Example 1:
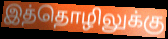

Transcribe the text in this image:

இத்தொழிலுக்கு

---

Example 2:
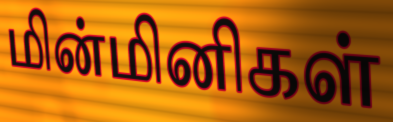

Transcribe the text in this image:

மின்மினிகள்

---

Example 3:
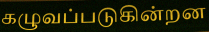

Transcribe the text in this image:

கழுவப்படுகின்றன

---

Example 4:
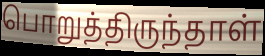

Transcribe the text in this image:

பொறுத்திருந்தாள்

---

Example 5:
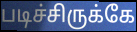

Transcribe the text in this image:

படிச்சிருக்கே